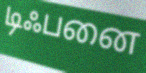
டிஃபனை